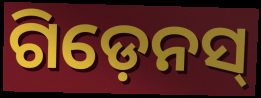
ଗିଡ଼େନସ୍